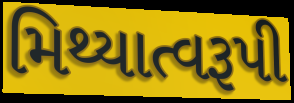
મિથ્યાત્વરૂપી